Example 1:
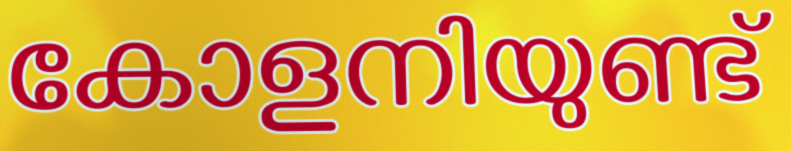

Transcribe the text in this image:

കോളനിയുണ്ട്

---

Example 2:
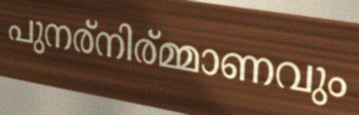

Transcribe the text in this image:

പുനര്നിര്മ്മാണവും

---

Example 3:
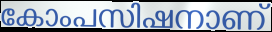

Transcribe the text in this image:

കോംപസിഷനാണ്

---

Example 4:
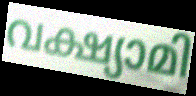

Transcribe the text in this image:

വക്ഷ്യാമി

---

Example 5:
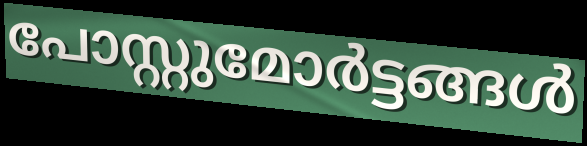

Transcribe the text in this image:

പോസ്റ്റുമോർട്ടങ്ങൾ